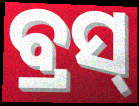
ବ୍ରସ୍